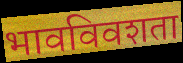
भावविवशता